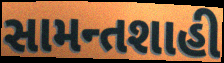
સામન્તશાહી